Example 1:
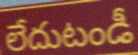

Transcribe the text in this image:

లేదుటండీ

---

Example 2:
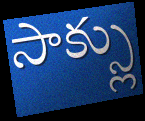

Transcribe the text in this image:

సాక్స్లు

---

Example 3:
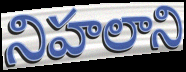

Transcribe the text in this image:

నిహలాని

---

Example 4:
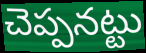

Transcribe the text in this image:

చెప్పనట్టు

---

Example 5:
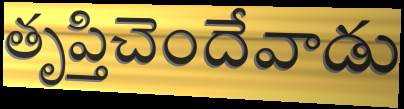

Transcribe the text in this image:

తృప్తిచెందేవాడు